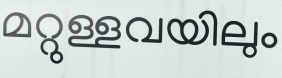
മറ്റുള്ളവയിലും